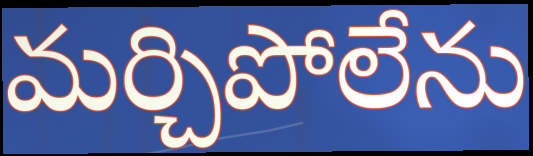
మర్చిపోలేను